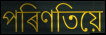
পৰিণতিয়ে